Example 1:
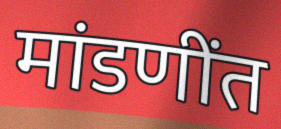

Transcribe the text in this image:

मांडणींत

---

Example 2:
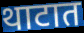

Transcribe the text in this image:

थाटात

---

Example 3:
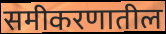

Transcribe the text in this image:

समीकरणातील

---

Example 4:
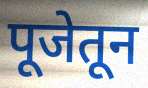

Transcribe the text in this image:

पूजेतून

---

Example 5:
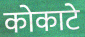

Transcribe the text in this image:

कोकाटे